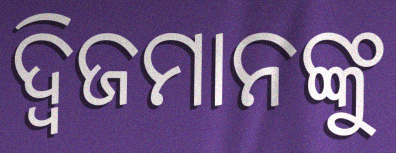
ଦ୍ଵିଜମାନଙ୍କୁ